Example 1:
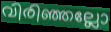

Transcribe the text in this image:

വിരിഞ്ഞല്ലോ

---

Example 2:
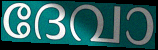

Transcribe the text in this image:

ദേവാ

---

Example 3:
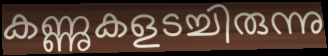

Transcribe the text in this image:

കണ്ണുകളടച്ചിരുന്നു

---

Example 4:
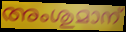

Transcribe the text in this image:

അംശുമാന്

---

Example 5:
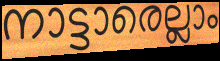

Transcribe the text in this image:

നാട്ടാരെല്ലാം